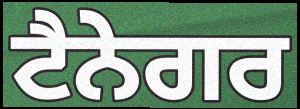
ਟੈਨੇਗਰ